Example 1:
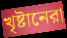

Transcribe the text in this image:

খৃষ্টানেরা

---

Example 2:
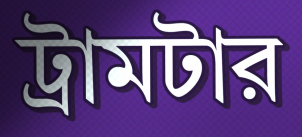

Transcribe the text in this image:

ট্রামটার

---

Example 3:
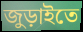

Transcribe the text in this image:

জুড়াইতে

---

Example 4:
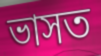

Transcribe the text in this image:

ভাসত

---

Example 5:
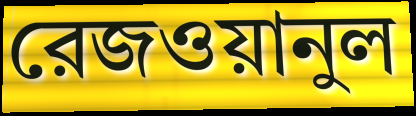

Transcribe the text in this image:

রেজওয়ানুল